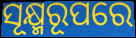
ସୂକ୍ଷ୍ମରୂପରେ